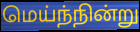
மெய்ந்நின்று